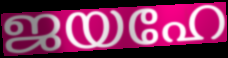
ജയഹേ